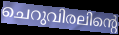
ചെറുവിരലിന്റെ